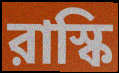
রাস্কি